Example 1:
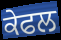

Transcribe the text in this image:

ਕੇਫਲ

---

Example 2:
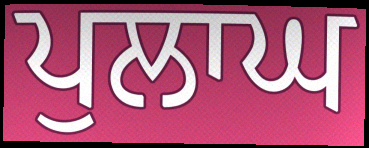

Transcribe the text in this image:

ਪੁਲਾਘ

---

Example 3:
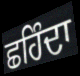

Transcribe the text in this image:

ਛਹਿੰਦਾ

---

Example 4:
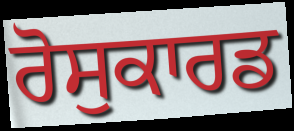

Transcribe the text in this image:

ਰੋਸੁਕਾਰਡ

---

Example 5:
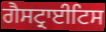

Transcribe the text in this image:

ਗੈਸਟ੍ਰਾਈਟਿਸ